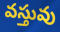
వస్తువు